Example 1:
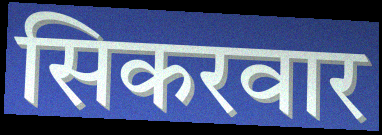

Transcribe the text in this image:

सिकरवार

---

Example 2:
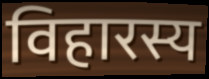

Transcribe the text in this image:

विहारस्य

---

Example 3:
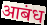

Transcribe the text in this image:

आबंध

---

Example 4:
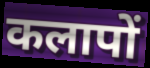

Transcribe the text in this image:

कलापों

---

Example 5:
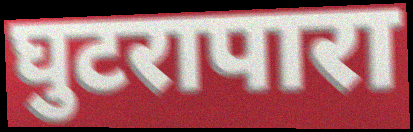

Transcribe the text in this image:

घुटरापारा